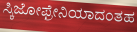
ಸ್ಕಿಜೋಫ್ರೇನಿಯಾದಂತಹ